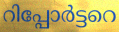
റിപ്പോർട്ടറെ